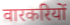
वारकरियों